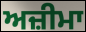
ਅਜ਼ੀਮਾ